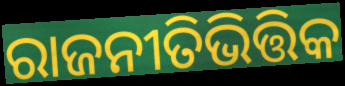
ରାଜନୀତିଭିତ୍ତିକ